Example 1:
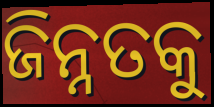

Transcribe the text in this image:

ଜିନ୍ନତକୁ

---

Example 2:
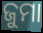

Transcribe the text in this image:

ଜୁମା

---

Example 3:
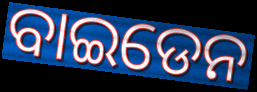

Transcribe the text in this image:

ବାଇଡେନ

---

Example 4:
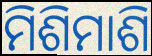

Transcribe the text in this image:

ମିଶିମାଶି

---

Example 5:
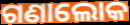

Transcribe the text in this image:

ଗଣାଲୋକ